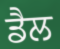
ਡੈਲ